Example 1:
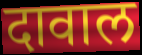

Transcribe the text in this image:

दावाल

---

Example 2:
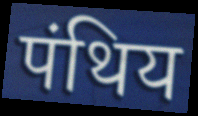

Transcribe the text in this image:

पंथिय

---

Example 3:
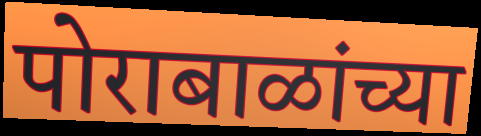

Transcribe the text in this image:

पोराबाळांच्या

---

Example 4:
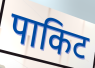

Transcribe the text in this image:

पाकिट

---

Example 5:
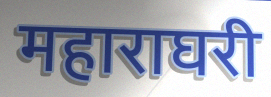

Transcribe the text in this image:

महाराघरी